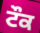
ਟੌਕ